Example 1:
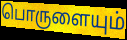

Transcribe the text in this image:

பொருளையும்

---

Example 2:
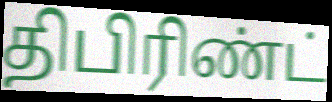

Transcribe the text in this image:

திபிரிண்ட்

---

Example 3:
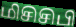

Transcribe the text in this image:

மிசிசிபி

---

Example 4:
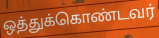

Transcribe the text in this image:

ஒத்துக்கொண்டவர்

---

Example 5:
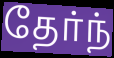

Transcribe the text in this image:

தேர்ந்